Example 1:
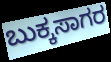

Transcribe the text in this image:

ಬುಕ್ಕಸಾಗರ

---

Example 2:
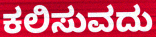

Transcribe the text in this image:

ಕಲಿಸುವದು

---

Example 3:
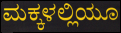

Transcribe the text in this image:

ಮಕ್ಕಳಲ್ಲಿಯೂ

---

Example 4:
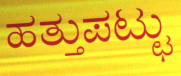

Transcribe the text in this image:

ಹತ್ತುಪಟ್ಟು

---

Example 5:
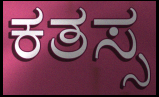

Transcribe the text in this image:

ಕತಸ್ಸ